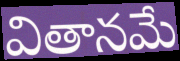
వితానమే